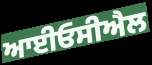
ਆਈਓਸੀਐਲ